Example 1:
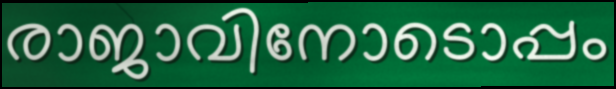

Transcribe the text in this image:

രാജാവിനോടൊപ്പം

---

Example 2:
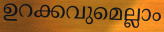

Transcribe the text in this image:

ഉറക്കവുമെല്ലാം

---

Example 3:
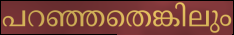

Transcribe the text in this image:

പറഞ്ഞതെങ്കിലും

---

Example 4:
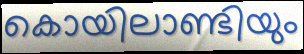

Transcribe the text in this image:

കൊയിലാണ്ടിയും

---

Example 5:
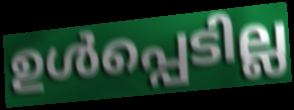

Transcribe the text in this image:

ഉൾപ്പെടില്ല